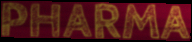
PHARMA